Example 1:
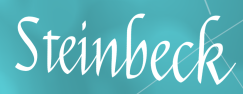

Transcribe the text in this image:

Steinbeck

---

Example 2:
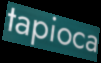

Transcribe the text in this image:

tapioca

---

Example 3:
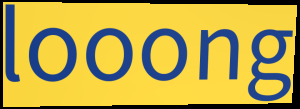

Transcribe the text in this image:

looong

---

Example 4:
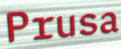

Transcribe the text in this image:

Prusa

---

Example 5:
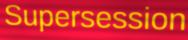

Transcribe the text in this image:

Supersession